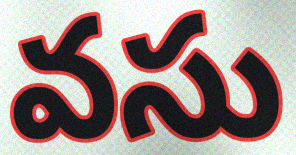
వసు